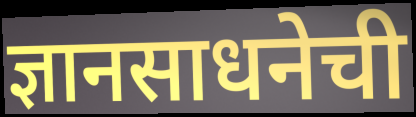
ज्ञानसाधनेची